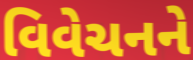
વિવેચનને